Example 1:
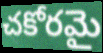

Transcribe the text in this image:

చకోరమై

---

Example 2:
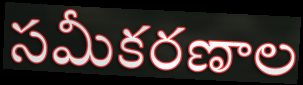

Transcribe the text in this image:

సమీకరణాల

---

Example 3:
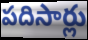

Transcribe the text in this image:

పదిసార్లు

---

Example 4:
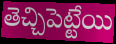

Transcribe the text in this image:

తెచ్చిపెట్టేయి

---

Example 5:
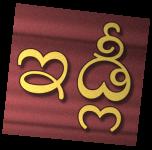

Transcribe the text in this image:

ఇడ్లీ